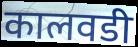
कालवडी